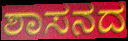
ಶಾಸನದ